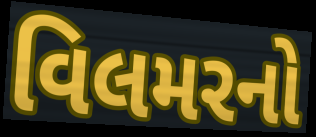
વિલમરનો